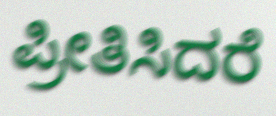
ಪ್ರೀತಿಸಿದರೆ